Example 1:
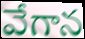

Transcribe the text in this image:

వేగాన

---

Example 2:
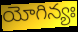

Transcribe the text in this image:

యోగిన్యః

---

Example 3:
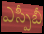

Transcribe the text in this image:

ఎస్పీబీ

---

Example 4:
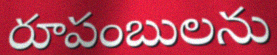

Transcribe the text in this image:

రూపంబులను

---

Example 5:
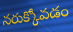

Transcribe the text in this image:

నరుక్కోవడం